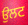
ਉਲਟ